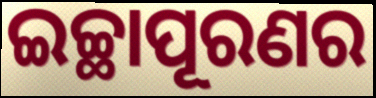
ଇଚ୍ଛାପୂରଣର